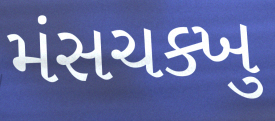
મંસચક્ખુ